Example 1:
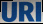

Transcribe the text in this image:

URI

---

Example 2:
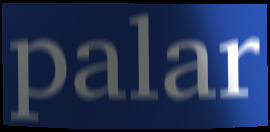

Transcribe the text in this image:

palar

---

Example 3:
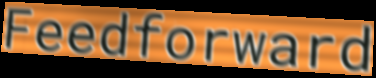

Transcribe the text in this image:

Feedforward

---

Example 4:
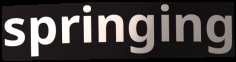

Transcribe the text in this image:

springing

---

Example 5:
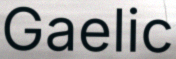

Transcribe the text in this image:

Gaelic